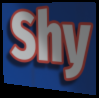
Shy